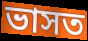
ভাসত